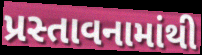
પ્રસ્તાવનામાંથી